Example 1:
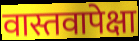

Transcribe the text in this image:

वास्तवापेक्षा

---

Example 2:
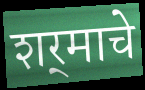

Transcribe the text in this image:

शर्माचे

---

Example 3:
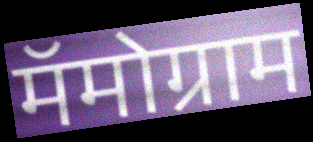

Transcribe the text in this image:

मॅमोग्राम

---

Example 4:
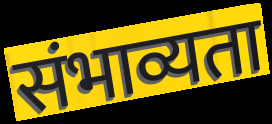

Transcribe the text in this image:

संभाव्यता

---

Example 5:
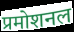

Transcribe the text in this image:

प्रमोशनल